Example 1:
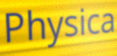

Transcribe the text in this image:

Physica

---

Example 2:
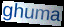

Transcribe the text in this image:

ghuma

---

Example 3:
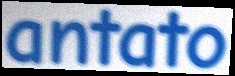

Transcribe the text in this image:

antato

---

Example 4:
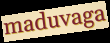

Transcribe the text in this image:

maduvaga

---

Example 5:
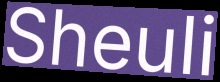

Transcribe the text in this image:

Sheuli